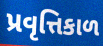
પ્રવૃત્તિકાળ